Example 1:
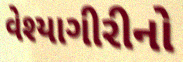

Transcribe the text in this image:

વેશ્યાગીરીનો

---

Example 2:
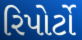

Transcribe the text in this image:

રિપોર્ટો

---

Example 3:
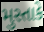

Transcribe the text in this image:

મુસ્તાકે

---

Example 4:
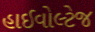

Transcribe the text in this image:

હાઈવોલ્ટેજ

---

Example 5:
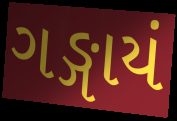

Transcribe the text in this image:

ગઙ્ગાયં